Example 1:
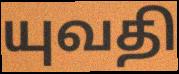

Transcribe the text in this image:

யுவதி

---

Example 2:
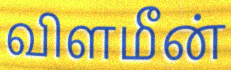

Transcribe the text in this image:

விளமீன்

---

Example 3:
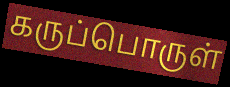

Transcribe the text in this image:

கருப்பொருள்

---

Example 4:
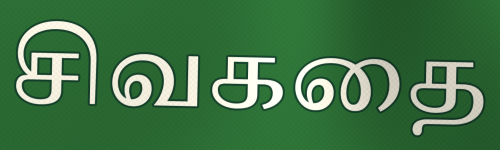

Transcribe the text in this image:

சிவகதை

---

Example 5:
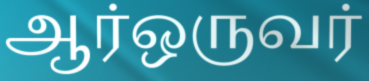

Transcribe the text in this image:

ஆர்ஒருவர்